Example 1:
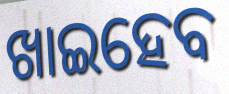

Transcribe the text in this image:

ଖାଇହେବ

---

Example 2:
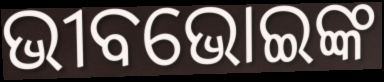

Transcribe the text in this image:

ଭୀବଭୋଇଙ୍କ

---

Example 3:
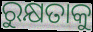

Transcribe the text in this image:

ରୁକ୍ଷତାକୁ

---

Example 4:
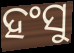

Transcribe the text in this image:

ହଂସୁ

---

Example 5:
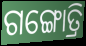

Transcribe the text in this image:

ଗଙ୍ଗୋତ୍ରି